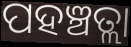
ପହଞ୍ଚତ୍ଲା